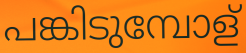
പങ്കിടുമ്പോള്